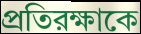
প্রতিরক্ষাকে